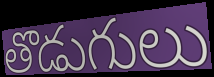
తొడుగులు